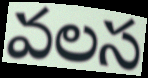
వలస